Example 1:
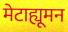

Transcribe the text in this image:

मेटाह्यूमन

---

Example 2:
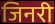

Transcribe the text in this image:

जिनरी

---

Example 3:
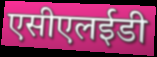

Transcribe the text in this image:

एसीएलईडी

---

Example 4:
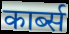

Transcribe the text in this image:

कार्ब्स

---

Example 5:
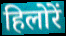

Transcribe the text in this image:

हिलोरें